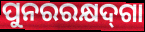
ପୁନରରକ୍ଷଦ୍‌ଗା